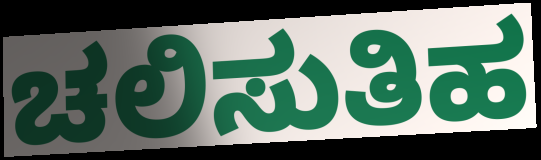
ಚಲಿಸುತಿಹ